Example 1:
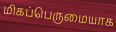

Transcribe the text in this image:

மிகப்பெருமையாக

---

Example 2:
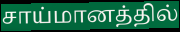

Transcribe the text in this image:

சாய்மானத்தில்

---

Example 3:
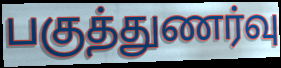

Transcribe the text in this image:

பகுத்துணர்வு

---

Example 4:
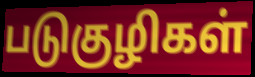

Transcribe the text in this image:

படுகுழிகள்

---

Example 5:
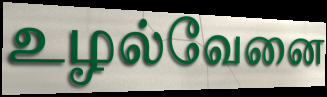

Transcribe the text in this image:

உழல்வேனை